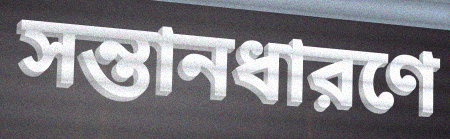
সন্তানধারণে